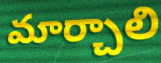
మార్చాలి